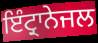
ਇੰਟ੍ਰਾਨੇਜਲ